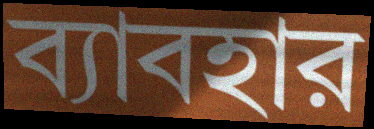
ব্যাবহার